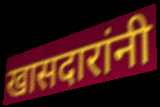
खासदारांनी